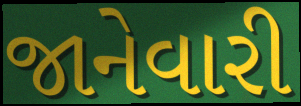
જાનેવારી